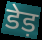
डेड़